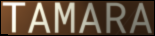
TAMARA